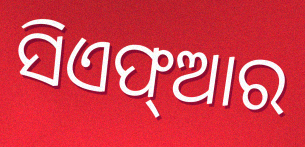
ସିଏଫ୍ଆର